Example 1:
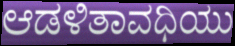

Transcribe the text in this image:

ಆಡಳಿತಾವಧಿಯು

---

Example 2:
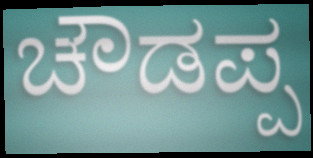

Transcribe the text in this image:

ಚೌಡಪ್ಪ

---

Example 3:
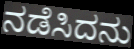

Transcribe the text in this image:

ನಡೆಸಿದನು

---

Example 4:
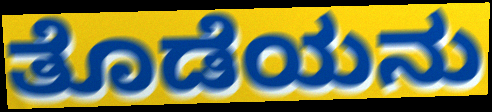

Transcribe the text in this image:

ತೊಡೆಯನು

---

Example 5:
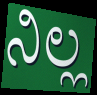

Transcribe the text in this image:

ನಿಲ್ಲ